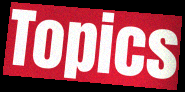
Topics